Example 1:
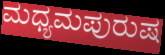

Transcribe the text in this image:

ಮಧ್ಯಮಪುರುಷ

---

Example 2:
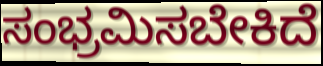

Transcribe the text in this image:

ಸಂಭ್ರಮಿಸಬೇಕಿದೆ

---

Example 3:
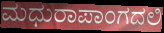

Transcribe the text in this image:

ಮಧುರಾಪಾಂಗದಲಿ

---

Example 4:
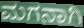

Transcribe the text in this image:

ಮಗನಾಗಿ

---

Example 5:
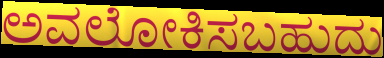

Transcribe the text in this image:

ಅವಲೋಕಿಸಬಹುದು